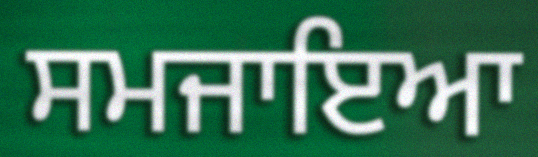
ਸਮਜਾਇਆ